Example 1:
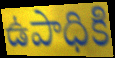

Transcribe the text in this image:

ఉపాధికి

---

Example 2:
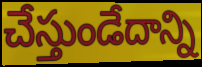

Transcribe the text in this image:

చేస్తుండేదాన్ని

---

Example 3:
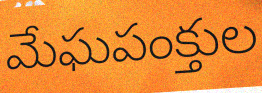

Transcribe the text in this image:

మేఘపంక్తుల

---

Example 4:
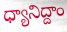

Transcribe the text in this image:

ధ్యానిద్దాం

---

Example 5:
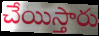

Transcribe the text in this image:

చేయిస్తారు